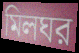
মিলঘর